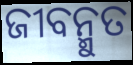
ଜୀବନ୍ମୁତ